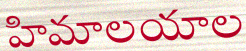
హిమాలయాల